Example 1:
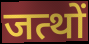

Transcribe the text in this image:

जत्थों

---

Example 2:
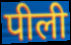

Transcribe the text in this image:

पीली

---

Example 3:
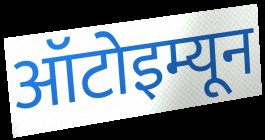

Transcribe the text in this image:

ऑटोइम्यून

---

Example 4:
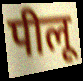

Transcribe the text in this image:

पीलू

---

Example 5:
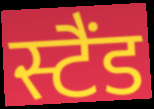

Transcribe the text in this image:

स्टैंड